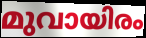
മുവായിരം